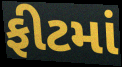
ફીટમાં